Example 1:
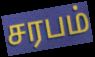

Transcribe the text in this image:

சரபம்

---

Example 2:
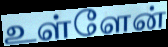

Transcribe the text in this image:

உள்ளேன்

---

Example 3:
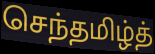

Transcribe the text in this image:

செந்தமிழ்த்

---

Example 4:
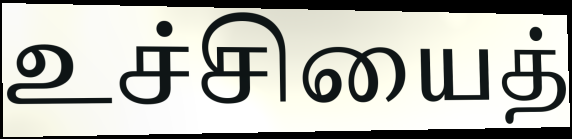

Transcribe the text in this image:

உச்சியைத்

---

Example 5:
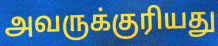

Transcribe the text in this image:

அவருக்குரியது